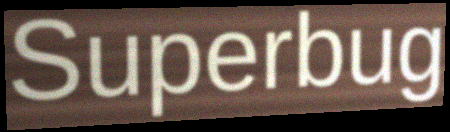
Superbug